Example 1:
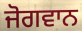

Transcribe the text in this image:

ਜੋਗਵਾਨ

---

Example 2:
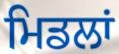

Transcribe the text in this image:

ਮਿਡਲਾਂ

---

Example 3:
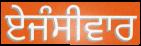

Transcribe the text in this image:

ਏਜੰਸੀਵਾਰ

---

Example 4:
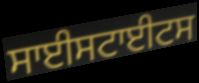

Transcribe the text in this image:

ਸਾਈਸਟਾਈਟਸ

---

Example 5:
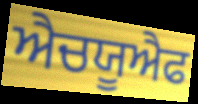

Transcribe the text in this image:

ਐਚਯੂਐਫ